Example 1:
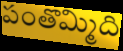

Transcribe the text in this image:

పంతొమ్మిది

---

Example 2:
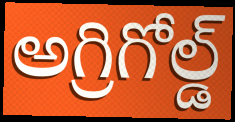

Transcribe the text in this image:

అగ్రిగోల్డ్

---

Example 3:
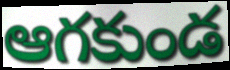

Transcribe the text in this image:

ఆగకుండ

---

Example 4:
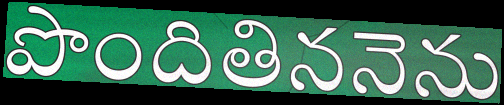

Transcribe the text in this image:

పొందితిననెను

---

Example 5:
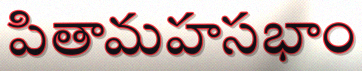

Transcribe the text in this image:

పితామహసభాం